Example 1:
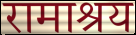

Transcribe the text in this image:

रामाश्रय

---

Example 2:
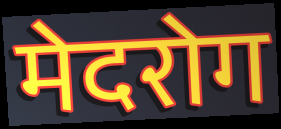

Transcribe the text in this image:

मेदरोग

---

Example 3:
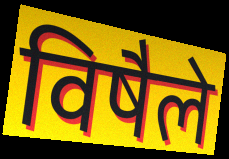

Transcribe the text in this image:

विषैले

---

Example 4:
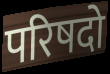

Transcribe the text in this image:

परिषदो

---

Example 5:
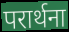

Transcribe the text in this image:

परार्थना